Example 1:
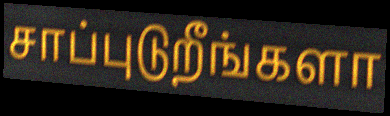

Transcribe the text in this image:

சாப்புடுறீங்களா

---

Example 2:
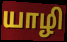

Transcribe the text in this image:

யாழி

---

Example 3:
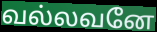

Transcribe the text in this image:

வல்லவனே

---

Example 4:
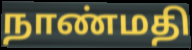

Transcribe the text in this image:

நாண்மதி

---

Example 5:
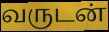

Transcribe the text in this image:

வருடன்